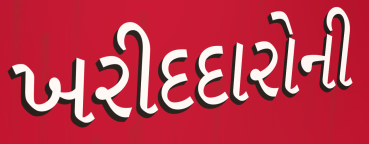
ખરીદદારોની